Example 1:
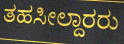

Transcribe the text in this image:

ತಹಸೀಲ್ದಾರರು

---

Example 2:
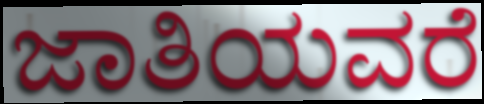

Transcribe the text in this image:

ಜಾತಿಯವರೆ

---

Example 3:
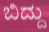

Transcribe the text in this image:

ಬಿದ್ದು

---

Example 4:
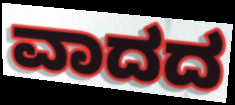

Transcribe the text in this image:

ವಾದದ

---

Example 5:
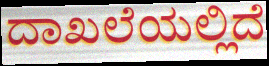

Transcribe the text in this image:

ದಾಖಲೆಯಲ್ಲಿದೆ